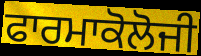
ਫਾਰਮਾਕੋਲੋਜੀ